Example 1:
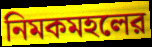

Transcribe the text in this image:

নিমকমহলের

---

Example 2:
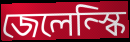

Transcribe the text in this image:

জেলেন্স্কি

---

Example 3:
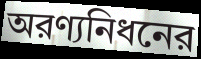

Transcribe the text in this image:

অরণ্যনিধনের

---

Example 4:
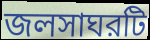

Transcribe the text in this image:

জলসাঘরটি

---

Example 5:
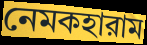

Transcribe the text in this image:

নেমকহারাম